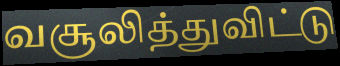
வசூலித்துவிட்டு